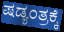
ಷಡ್ಯಂತ್ರಕ್ಕೆ